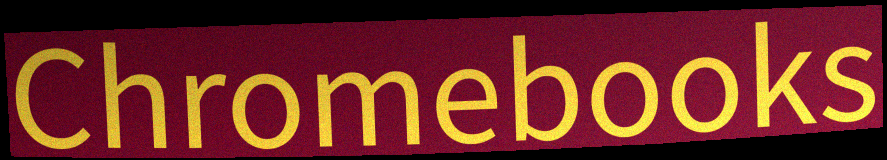
Chromebooks